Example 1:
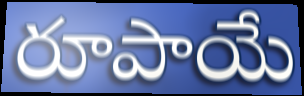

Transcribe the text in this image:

రూపాయే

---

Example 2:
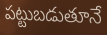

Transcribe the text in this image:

పట్టుబడుతూనే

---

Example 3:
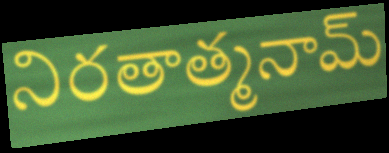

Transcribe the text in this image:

నిరతాత్మనామ్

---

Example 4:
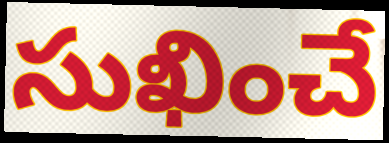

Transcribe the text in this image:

సుఖించే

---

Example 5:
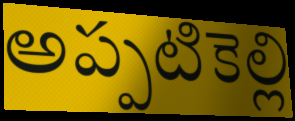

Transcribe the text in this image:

అప్పటికెల్లి